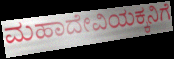
ಮಹಾದೇವಿಯಕ್ಕನಿಗೆ